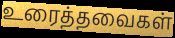
உரைத்தவைகள்